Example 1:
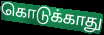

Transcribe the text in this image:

கொடுக்காது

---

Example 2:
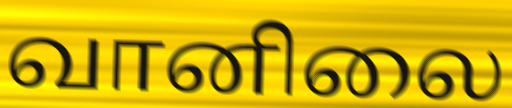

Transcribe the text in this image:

வானிலை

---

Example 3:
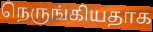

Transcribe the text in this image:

நெருங்கியதாக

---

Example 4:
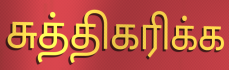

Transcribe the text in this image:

சுத்திகரிக்க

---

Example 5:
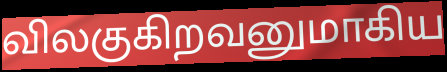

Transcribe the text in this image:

விலகுகிறவனுமாகிய